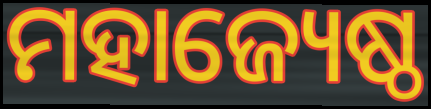
ମହାଜ୍ୟେଷ୍ଠ